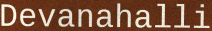
Devanahalli